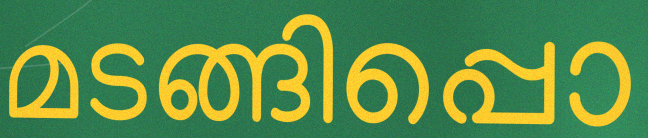
മടങ്ങിപ്പൊ